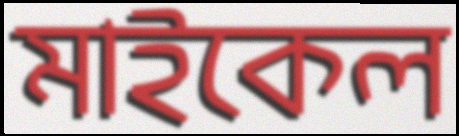
মাইকেল